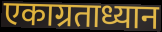
एकाग्रताध्यान